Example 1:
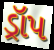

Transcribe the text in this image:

ડ્રૉપ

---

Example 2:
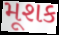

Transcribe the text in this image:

મૂશક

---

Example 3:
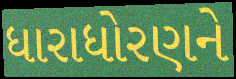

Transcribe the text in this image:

ધારાધોરણને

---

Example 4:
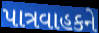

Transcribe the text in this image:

પાત્રવાહકને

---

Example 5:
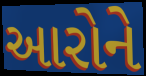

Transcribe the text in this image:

આરોને